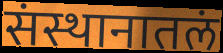
संस्थानातलं